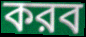
করব